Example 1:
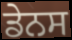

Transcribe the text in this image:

ਡੇਨਸ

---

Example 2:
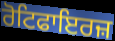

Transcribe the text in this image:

ਰੋਟਿਫਾਇਰਜ਼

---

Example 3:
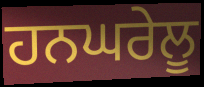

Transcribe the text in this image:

ਹਨਘਰੇਲੂ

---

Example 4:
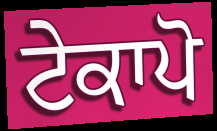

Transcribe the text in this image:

ਟੇਕਾਪੋ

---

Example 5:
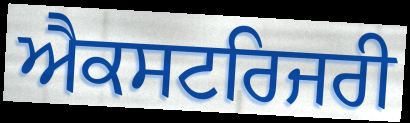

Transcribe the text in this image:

ਐਕਸਟਰਿਜਰੀ